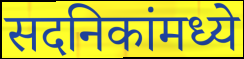
सदनिकांमध्ये